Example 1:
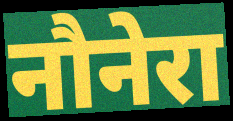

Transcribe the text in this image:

नौनेरा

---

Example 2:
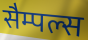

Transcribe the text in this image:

सैम्‍पल्‍स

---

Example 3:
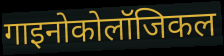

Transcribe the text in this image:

गाइनोकोलॉजिकल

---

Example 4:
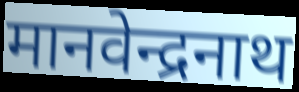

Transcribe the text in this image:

मानवेन्द्रनाथ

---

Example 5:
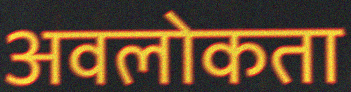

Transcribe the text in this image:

अवलोकता